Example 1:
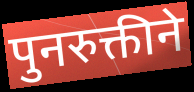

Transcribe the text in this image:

पुनरुक्तीने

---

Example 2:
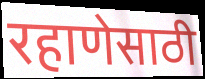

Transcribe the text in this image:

रहाणेसाठी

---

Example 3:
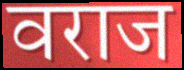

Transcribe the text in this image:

वराज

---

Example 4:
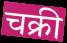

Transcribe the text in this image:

चक्री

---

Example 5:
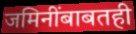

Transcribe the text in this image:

जमिनींबाबतही